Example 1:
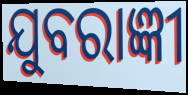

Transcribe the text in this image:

ଯୁବରାଜ୍ଞୀ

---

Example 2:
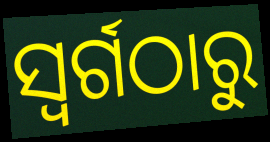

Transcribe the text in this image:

ସ୍ଵର୍ଗଠାରୁ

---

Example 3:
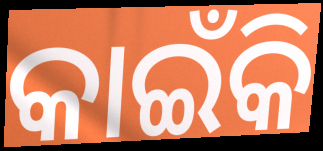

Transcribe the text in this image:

କାଇଁକି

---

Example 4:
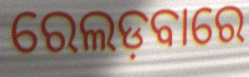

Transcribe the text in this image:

ରେଲଡ଼ବାରେ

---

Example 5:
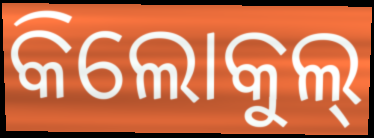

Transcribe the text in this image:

କିଲୋକୁଲ୍